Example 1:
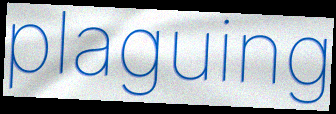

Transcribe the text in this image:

plaguing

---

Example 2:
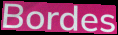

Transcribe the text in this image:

Bordes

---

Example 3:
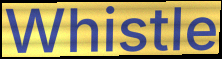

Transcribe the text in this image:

Whistle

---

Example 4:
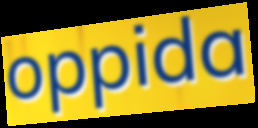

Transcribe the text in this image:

oppida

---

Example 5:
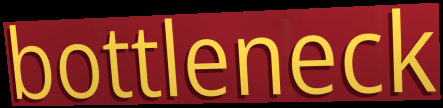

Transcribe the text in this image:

bottleneck